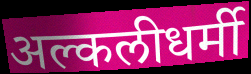
अल्कलीधर्मी